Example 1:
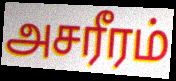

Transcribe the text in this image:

அசரீரம்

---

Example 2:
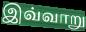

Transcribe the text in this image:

இவ்வாறு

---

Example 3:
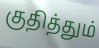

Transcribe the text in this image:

குதித்தும்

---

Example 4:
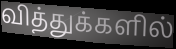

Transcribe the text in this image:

வித்துக்களில்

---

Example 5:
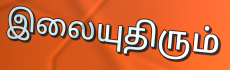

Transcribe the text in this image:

இலையுதிரும்